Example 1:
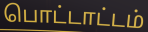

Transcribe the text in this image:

பொட்டாட்டம்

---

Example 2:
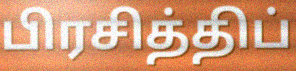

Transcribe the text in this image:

பிரசித்திப்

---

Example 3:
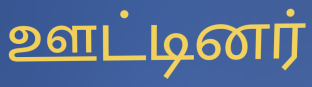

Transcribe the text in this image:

ஊட்டினர்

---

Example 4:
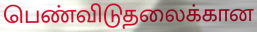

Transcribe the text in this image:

பெண்விடுதலைக்கான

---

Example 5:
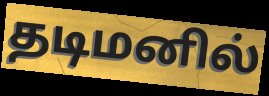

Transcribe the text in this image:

தடிமனில்